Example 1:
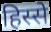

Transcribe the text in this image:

हिस्से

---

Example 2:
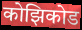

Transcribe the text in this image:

कोझिकोड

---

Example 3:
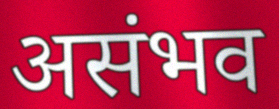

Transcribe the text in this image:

असंभव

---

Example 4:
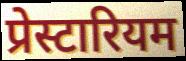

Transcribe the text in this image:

प्रेस्टारियम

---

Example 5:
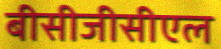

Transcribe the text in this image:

बीसीजीसीएल